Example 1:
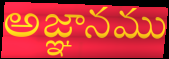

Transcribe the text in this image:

అజ్ఞానము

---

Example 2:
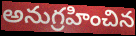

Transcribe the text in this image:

అనుగ్రహించిన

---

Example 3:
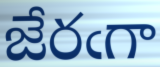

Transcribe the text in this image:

జేరఁగా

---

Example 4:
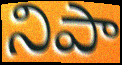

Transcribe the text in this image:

నిపా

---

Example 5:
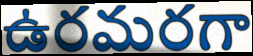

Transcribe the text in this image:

ఉరమరగా